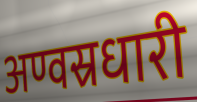
अण्वस्रधारी